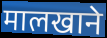
मालखाने